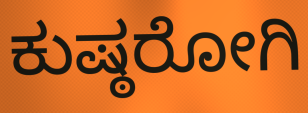
ಕುಷ್ಠರೋಗಿ